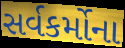
સર્વકર્મોના